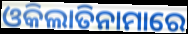
ଓକିଲାତିନାମାରେ